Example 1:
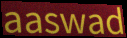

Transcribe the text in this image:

aaswad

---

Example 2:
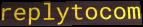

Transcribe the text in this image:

replytocom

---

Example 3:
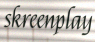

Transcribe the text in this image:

skreenplay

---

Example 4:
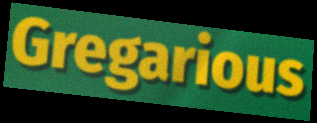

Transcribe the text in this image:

Gregarious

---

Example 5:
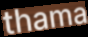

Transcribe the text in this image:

thama